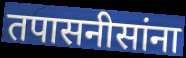
तपासनीसांना